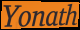
Yonath